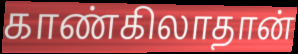
காண்கிலாதான்